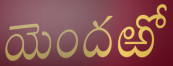
యెందఱో